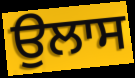
ਉਲਾਸ